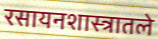
रसायनशास्त्रातले